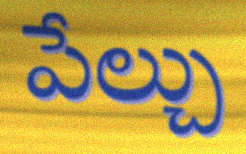
పేల్చు